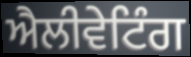
ਐਲੀਵੇਟਿੰਗ